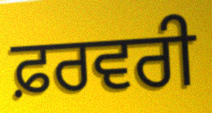
ਫ਼ਰਵਰੀ